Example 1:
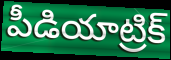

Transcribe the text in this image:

పీడియాట్రిక్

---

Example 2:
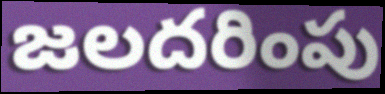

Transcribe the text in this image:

జలదరింపు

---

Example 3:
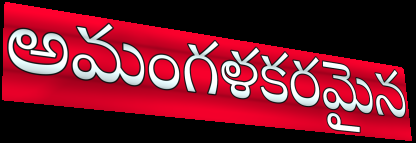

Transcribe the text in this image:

అమంగళకరమైన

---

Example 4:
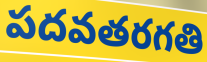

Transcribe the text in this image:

పదవతరగతి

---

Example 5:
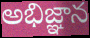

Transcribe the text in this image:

అభిజ్ఞాన